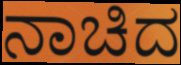
ನಾಚಿದ